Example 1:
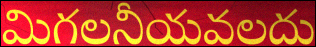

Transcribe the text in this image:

మిగలనీయవలదు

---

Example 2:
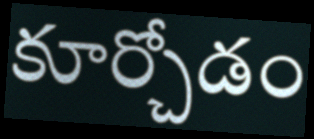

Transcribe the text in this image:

కూర్చోడం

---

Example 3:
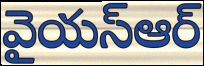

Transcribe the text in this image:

వైయస్ఆర్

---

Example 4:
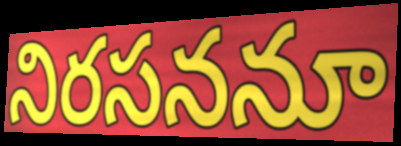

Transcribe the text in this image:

నిరసననూ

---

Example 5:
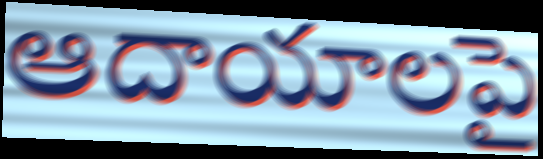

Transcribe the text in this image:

ఆదాయాలపై